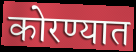
कोरण्यात